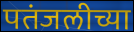
पतंजलीच्या